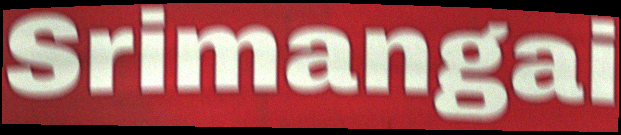
Srimangai